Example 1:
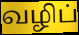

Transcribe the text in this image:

வழிப்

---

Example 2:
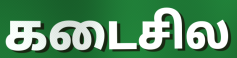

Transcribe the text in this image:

கடைசில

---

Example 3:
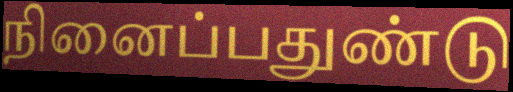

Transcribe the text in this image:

நினைப்பதுண்டு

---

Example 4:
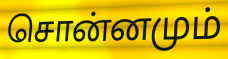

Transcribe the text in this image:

சொன்னமும்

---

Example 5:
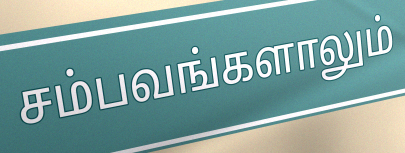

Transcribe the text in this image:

சம்பவங்களாலும்